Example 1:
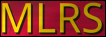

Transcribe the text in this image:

MLRS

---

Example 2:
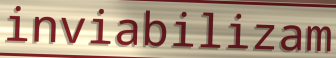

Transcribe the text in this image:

inviabilizam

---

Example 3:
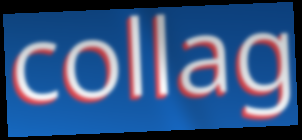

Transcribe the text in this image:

collag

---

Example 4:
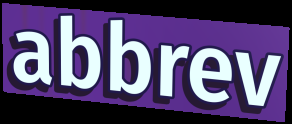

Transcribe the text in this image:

abbrev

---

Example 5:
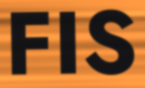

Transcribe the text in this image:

FIS